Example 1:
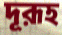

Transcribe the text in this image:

দূরূহ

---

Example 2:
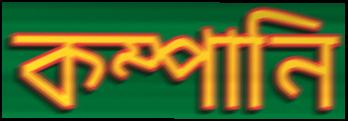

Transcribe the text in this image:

কম্পানি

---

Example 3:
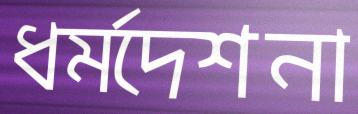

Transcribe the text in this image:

ধর্মদেশনা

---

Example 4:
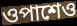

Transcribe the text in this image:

ওপাশেও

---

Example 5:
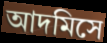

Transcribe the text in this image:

আদমিসে